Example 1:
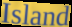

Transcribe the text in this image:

Island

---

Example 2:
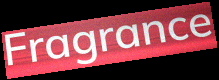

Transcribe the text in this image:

Fragrance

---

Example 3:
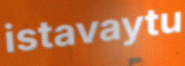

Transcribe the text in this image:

istavaytu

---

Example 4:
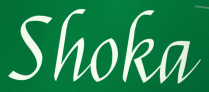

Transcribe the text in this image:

Shoka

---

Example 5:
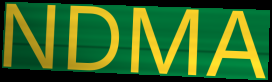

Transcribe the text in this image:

NDMA